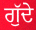
ਗੁੱਦੇ